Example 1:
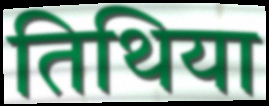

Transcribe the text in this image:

तिथिया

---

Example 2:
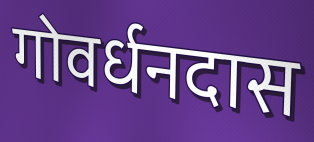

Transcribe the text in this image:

गोवर्धनदास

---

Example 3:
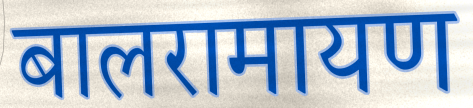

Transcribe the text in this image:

बालरामायण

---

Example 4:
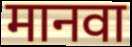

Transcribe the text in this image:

मानवा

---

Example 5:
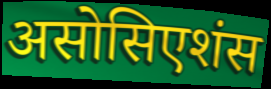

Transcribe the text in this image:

असोसिएशंस